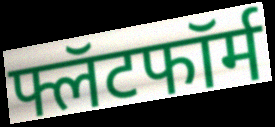
फ्लॅटफॉर्म